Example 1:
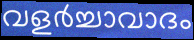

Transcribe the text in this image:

വളർച്ചാവാദം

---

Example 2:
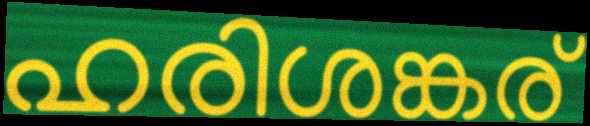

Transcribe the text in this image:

ഹരിശങ്കര്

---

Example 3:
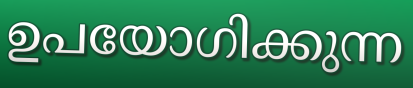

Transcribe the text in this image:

ഉപയോഗിക്കുന്ന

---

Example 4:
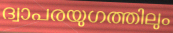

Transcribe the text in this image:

ദ്വാപരയുഗത്തിലും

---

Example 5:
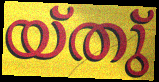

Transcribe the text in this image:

യ്തു്